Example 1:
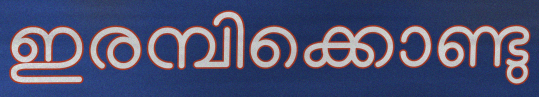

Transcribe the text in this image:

ഇരമ്പിക്കൊണ്ടു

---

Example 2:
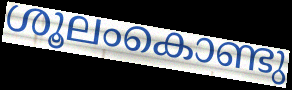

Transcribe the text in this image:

ശൂലംകൊണ്ടു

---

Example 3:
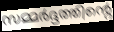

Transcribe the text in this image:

സമ്മർദ്ദത്തിന്റെ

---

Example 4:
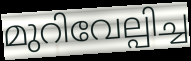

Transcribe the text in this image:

മുറിവേല്പിച്ച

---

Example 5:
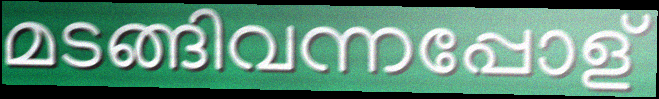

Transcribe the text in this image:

മടങ്ങിവന്നപ്പോള്